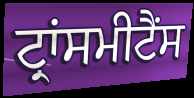
ਟ੍ਰਾਂਸਮੀਟੈਂਸ